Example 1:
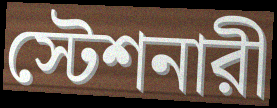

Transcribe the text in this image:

স্টেশনারী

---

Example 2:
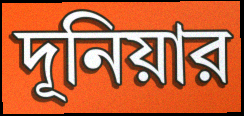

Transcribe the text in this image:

দূনিয়ার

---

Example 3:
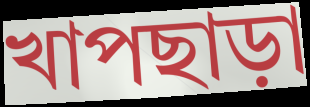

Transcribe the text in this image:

খাপছাড়া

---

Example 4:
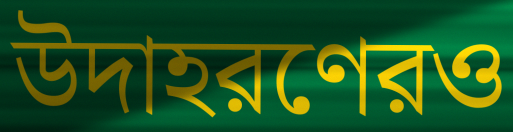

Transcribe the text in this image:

উদাহরণেরও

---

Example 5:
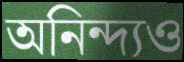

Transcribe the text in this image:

অনিন্দ্যও